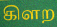
கிளற